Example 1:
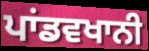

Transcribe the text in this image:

ਪਾਂਡਵਖਾਨੀ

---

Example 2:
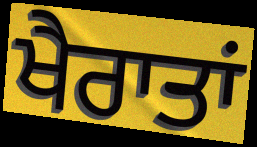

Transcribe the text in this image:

ਖੈਰਾਤਾਂ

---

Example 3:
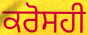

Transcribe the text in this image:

ਕਰੋਸਹੀ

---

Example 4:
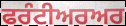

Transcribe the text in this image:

ਫਰੰਟੀਅਰਅਰ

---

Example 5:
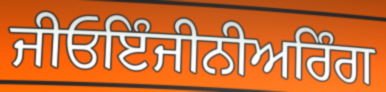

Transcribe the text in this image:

ਜੀਓਇੰਜੀਨੀਅਰਿੰਗ